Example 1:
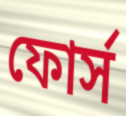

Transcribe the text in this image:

ফোর্স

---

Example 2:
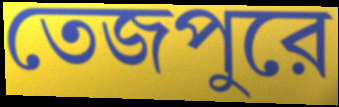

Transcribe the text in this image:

তেজপুরে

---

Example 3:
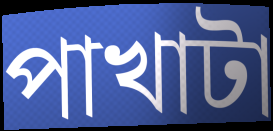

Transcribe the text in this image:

পাখাটা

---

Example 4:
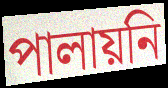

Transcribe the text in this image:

পালায়নি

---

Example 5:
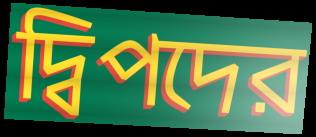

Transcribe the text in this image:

দ্বিপদের